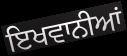
ਇਖਵਾਨੀਆਂ